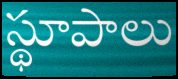
స్థూపాలు